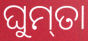
ଘୁମ୍‌ତା